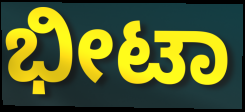
ಭೀಟಾ